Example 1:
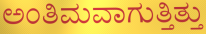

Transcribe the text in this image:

ಅಂತಿಮವಾಗುತ್ತಿತ್ತು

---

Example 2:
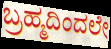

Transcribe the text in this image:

ಬ್ರಹ್ಮದಿಂದಲೇ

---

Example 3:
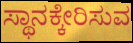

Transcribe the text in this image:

ಸ್ಥಾನಕ್ಕೇರಿಸುವ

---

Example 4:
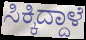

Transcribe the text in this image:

ಸಿಕ್ಕಿದ್ದಾಳೆ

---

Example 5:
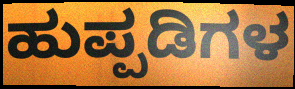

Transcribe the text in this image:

ಹುಪ್ಪಡಿಗಳ